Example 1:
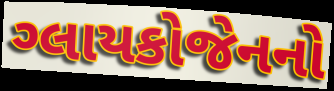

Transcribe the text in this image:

ગ્લાયકોજેનનો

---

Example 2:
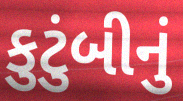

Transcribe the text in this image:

કુટુંબીનું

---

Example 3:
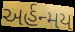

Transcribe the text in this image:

અર્હન્મય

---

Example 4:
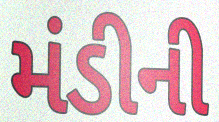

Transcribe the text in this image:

મંડીની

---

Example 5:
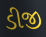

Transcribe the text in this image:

ડીજી